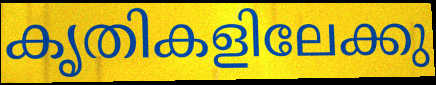
കൃതികളിലേക്കു